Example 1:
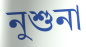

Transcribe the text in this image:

নুশুনা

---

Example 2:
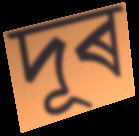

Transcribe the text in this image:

দূৰ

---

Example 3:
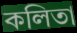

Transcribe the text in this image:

কলিতা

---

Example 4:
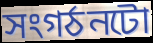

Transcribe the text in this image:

সংগঠনটো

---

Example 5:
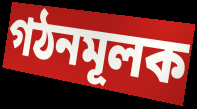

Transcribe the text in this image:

গঠনমূলক